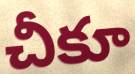
చీకూ